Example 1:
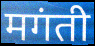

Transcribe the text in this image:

मगंती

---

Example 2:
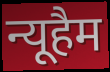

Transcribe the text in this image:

न्यूहैम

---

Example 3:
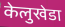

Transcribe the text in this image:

केलुखेडा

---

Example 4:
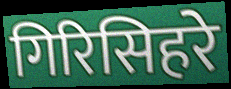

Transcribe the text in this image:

गिरिसिहरे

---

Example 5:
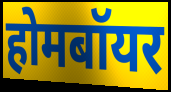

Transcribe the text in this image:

होमबॉयर